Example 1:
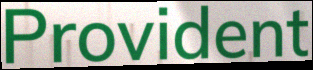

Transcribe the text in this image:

Provident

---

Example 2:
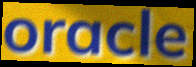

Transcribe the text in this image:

oracle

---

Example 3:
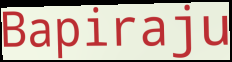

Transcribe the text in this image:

Bapiraju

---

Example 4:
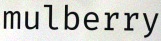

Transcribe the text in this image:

mulberry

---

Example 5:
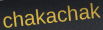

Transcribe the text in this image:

chakachak